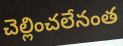
చెల్లించలేనంత